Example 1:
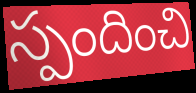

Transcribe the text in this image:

స్పందించి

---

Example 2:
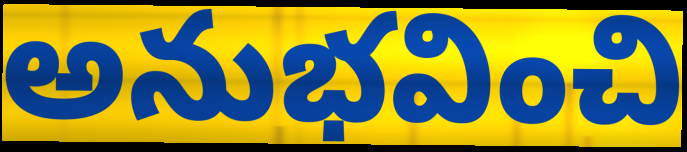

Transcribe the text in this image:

అనుభవించి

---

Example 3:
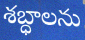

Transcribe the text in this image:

శబ్ధాలను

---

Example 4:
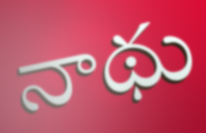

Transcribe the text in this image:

నాథు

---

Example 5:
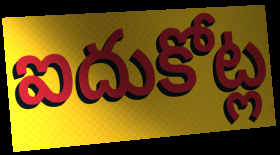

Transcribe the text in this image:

ఐదుకోట్ల